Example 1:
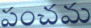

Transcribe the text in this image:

పంచమ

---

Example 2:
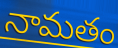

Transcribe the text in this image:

నామతం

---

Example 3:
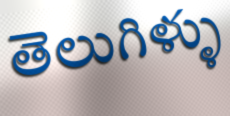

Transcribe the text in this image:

తెలుగిళ్ళు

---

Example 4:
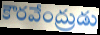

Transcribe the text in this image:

కౌరవేంద్రుడు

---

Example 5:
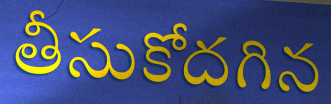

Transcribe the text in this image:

తీసుకోదగిన